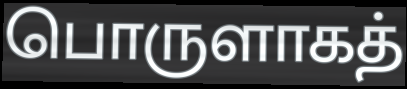
பொருளாகத்